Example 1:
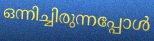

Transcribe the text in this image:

ഒന്നിച്ചിരുന്നപ്പോൾ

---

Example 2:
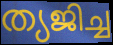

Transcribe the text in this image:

ത്യജിച്ച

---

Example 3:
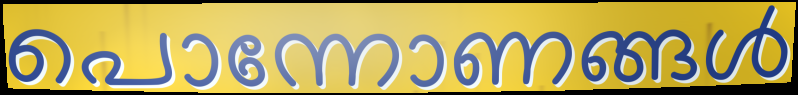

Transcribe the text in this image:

പൊന്നോണങ്ങൾ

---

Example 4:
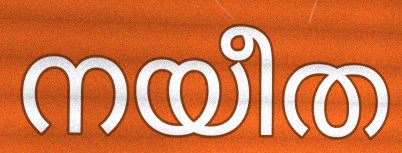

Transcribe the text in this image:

നയീത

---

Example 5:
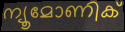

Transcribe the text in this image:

ന്യൂമോണിക്